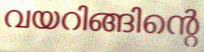
വയറിങ്ങിന്റെ